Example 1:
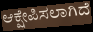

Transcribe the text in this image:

ಆಕ್ಷೇಪಿಸಲಾಗಿದೆ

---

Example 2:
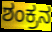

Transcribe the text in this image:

ಶಂಕ್ರನ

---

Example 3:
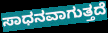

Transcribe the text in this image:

ಸಾಧನವಾಗುತ್ತದೆ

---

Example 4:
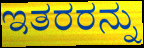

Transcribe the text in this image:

ಇತರರನ್ನು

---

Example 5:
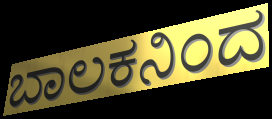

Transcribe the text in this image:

ಬಾಲಕನಿಂದ